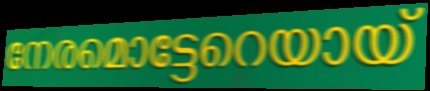
നേരമൊട്ടേറെയായ്